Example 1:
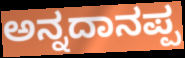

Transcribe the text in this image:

ಅನ್ನದಾನಪ್ಪ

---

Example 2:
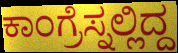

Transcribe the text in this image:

ಕಾಂಗ್ರೆಸ್ನಲ್ಲಿದ್ದ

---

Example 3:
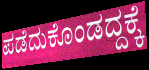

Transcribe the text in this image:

ಪಡೆದುಕೊಂಡದ್ದಕ್ಕೆ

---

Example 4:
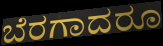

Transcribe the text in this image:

ಬೆರಗಾದರೂ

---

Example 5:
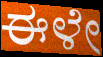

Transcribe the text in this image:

ಈಳೇ